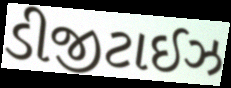
ડીજીટાઈઝ